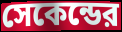
সেকেন্ডের